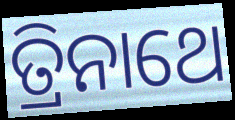
ତ୍ରିନାଥେ